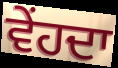
ਵੇਂਹਦਾ